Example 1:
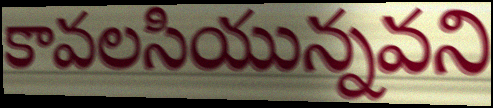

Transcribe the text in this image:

కావలసియున్నవని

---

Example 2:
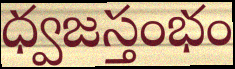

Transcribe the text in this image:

ధ్వజస్తంభం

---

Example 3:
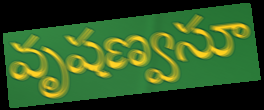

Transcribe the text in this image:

వృషణ్వసూ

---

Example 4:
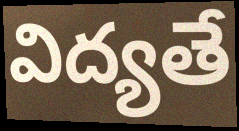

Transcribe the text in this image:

విద్యతే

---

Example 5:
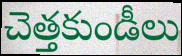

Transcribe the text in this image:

చెత్తకుండీలు